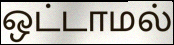
ஒட்டாமல்